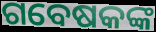
ଗବେଷକଙ୍କ